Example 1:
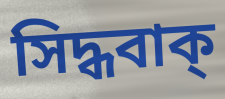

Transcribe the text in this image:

সিদ্ধবাক্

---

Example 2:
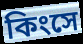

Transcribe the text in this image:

কিংসে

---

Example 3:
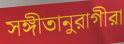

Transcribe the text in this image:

সঙ্গীতানুরাগীরা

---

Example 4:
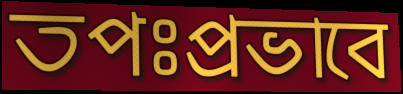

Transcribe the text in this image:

তপঃপ্রভাবে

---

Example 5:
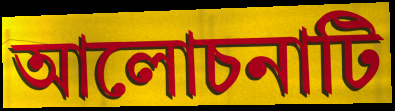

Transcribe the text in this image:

আলোচনাটি